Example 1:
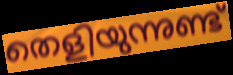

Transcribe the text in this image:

തെളിയുന്നുണ്ട്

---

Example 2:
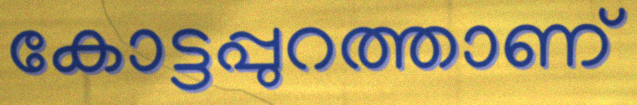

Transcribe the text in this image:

കോട്ടപ്പുറത്താണ്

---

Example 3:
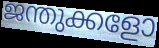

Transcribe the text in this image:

ജന്തുക്കളോ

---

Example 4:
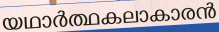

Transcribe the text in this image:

യഥാർത്ഥകലാകാരൻ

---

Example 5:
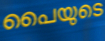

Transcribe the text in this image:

പൈയുടെ